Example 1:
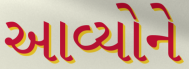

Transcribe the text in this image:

આવ્યોને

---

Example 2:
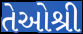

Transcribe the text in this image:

તેઓશ્રી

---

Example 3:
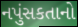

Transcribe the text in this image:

નપુંસકતાનો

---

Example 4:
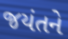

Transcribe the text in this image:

જયંતને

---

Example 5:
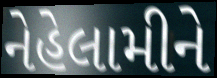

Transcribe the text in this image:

નેહેલામીને